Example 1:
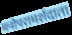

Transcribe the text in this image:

मनोपरामर्शदाता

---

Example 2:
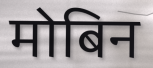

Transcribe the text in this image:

मोबिन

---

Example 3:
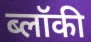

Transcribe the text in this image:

ब्लॉकी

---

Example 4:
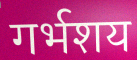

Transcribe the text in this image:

गर्भशय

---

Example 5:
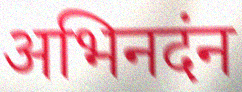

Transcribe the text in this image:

अभिनदंन